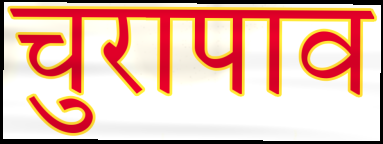
चुरापाव